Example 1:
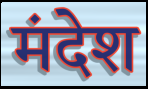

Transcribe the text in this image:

मंदेश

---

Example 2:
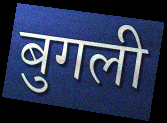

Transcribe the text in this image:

बुगली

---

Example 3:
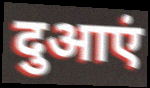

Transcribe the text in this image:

दुआएं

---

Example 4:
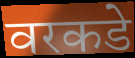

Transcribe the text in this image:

वरकडे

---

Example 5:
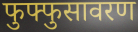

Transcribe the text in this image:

फुफ्फुसावरण